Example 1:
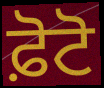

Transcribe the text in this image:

ਫ਼ੋਟੋ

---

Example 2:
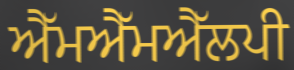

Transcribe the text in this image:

ਐੱਮਐੱਮਐੱਲਪੀ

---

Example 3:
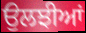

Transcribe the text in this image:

ਉਲਝੀਆਂ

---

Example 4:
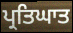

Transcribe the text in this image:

ਪ੍ਰਤਿਘਾਤ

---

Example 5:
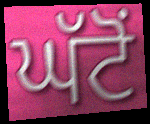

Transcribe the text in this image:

ਘੱਟੋਂ